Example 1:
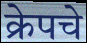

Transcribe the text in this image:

क्रेपचे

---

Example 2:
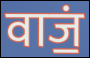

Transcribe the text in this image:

वाजं॒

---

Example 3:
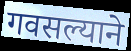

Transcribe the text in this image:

गवसल्याने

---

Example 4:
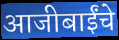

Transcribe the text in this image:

आजीबाईंचे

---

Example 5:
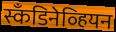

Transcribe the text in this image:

स्कँडिनेव्हियन